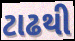
ટાઢથી